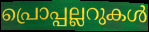
പ്രൊപ്പല്ലറുകൾ